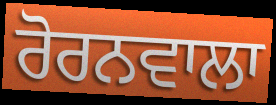
ਰੋਰਨਵਾਲਾ